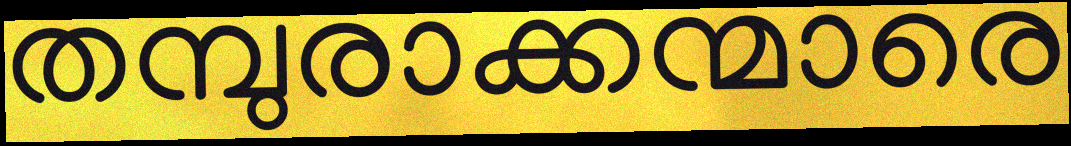
തമ്പുരാക്കന്മാരെ